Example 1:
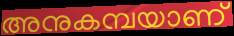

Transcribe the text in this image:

അനുകമ്പയാണ്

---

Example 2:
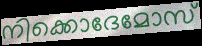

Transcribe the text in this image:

നിക്കൊദേമോസ്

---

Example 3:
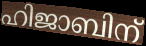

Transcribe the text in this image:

ഹിജാബിന്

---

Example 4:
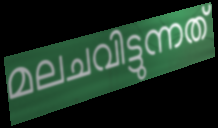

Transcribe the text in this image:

മലചവിട്ടുന്നത്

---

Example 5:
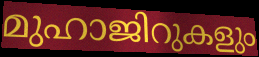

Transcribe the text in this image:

മുഹാജിറുകളും